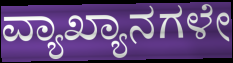
ವ್ಯಾಖ್ಯಾನಗಳೇ